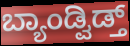
ಬ್ಯಾಂಡ್ವಿಡ್ತ್